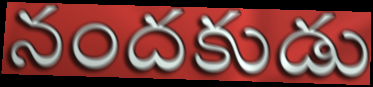
నందకుడు